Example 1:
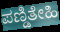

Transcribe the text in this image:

ಪಣ್ಡಿತೇಹಿ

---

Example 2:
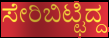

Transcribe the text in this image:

ಸೇರಿಬಿಟ್ಟಿದ್ದ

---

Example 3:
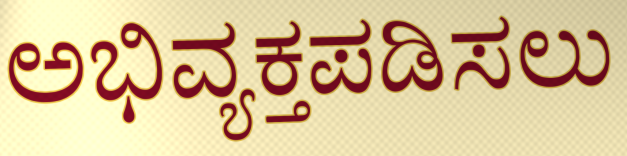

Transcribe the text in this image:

ಅಭಿವ್ಯಕ್ತಪಡಿಸಲು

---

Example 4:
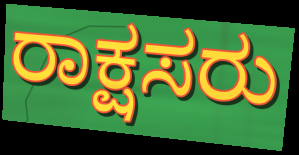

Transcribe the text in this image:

ರಾಕ್ಷಸರು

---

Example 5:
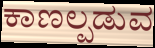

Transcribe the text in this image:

ಕಾಣಲ್ಪಡುವ